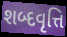
શબ્દવૃત્તિ